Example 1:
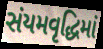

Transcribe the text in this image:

સંયમવૃદ્ધિમાં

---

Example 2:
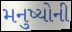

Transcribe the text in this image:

મનુષ્યોની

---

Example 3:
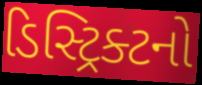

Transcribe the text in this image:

ડિસ્ટ્રિક્ટનો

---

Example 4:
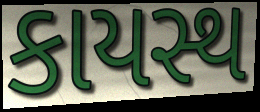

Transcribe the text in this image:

કાયસ્થ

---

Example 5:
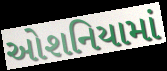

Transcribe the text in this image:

ઓશનિયામાં